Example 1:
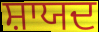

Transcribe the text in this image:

ਸ਼ਾਯਦ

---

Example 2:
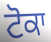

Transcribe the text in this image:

ਟੋਕਾ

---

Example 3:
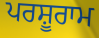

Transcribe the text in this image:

ਪਰਸ਼ੂਰਾਮ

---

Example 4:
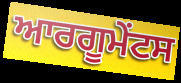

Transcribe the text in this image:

ਆਰਗੂਮੇੰਟਸ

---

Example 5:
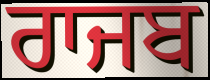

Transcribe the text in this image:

ਰਾਜਬ